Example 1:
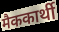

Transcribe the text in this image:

मैककार्थी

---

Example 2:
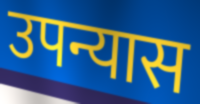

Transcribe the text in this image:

उपन्यास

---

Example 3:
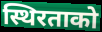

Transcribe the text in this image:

स्थिरताको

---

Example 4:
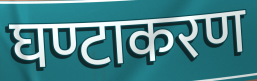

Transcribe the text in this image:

घण्टाकरण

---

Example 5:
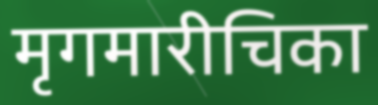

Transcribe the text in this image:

मृगमारीचिका